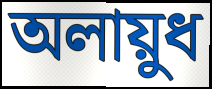
অলায়ুধ